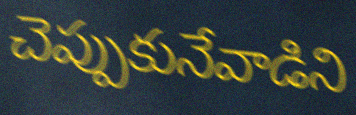
చెప్పుకునేవాడిని